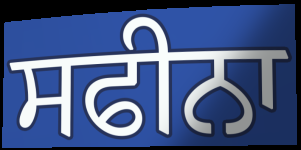
ਸਫੀਨਾ